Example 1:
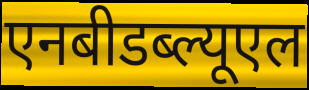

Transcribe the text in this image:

एनबीडब्ल्यूएल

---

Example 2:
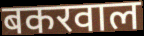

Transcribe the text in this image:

बकरवाल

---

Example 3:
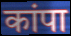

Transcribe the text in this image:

कांपा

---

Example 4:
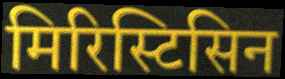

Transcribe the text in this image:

मिरिस्टिसिन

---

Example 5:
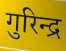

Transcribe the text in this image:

गुरिन्द्र